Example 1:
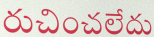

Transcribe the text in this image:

రుచించలేదు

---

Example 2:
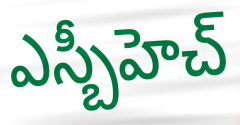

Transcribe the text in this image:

ఎస్బీహెచ్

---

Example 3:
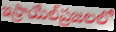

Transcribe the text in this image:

ఇస్రాయేల్‌ప్రజలలో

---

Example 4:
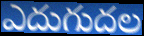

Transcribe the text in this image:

ఎదుగుదల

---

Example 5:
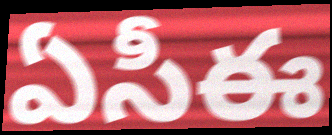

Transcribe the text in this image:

ఏసీఈ